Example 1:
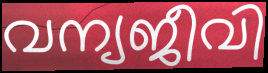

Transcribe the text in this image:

വന്യജീവി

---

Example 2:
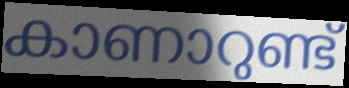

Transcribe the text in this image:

കാണാറുണ്ട്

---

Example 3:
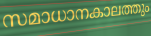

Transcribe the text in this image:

സമാധാനകാലത്തും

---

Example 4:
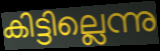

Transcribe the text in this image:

കിട്ടില്ലെന്നു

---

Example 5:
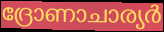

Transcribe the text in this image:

ദ്രോണാചാര്യർ